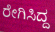
ರೇಗಿಸಿದ್ದ